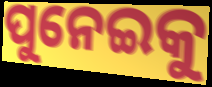
ପୁନେଇକୁ